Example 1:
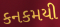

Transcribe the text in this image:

કનકમયી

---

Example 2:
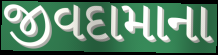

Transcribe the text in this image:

જીવદામાના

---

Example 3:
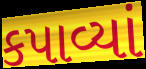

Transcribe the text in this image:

કપાવ્યાં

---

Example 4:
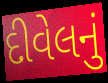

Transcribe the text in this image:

દીવેલનું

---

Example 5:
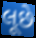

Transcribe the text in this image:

લૂછે